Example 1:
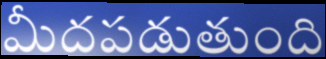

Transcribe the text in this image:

మీదపడుతుంది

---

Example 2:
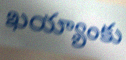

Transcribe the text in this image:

ఖయ్యాంకు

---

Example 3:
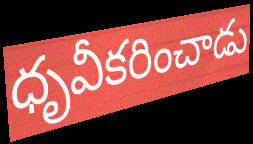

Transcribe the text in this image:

ధృవీకరించాడు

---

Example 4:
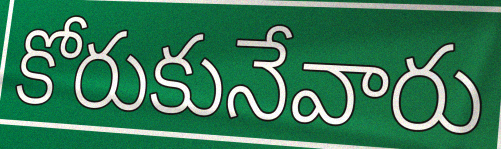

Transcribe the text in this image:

కోరుకునేవారు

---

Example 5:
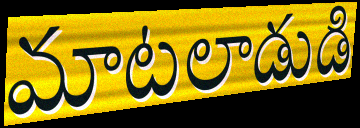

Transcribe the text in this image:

మాటలాడుడి